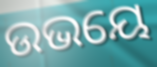
ଉଭୟେ